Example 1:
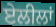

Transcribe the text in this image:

ਏਲੀਲਾਂ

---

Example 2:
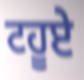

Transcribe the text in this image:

ਟਹੂਏ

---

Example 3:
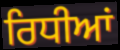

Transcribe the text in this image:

ਰਿਧੀਆਂ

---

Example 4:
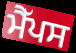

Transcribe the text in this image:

ਮੈੱਪਸ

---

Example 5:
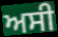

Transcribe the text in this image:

ਅਸੀ